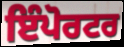
ਇੰਪੋਰਟਰ